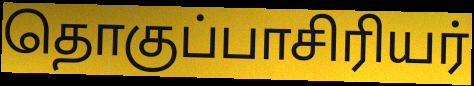
தொகுப்பாசிரியர்